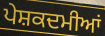
ਪੇਸ਼ਕਦਮੀਆਂ